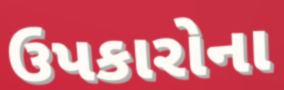
ઉપકારોના